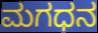
ಮಗಧನ